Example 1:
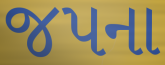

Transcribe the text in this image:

જપના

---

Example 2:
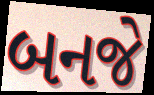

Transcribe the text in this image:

બનજે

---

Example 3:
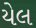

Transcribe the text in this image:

યેલ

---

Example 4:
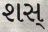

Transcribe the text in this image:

શસ્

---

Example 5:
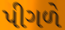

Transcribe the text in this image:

પીગળે